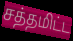
சத்தமிட்ட